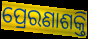
ପ୍ରେରଣାଶକ୍ତି